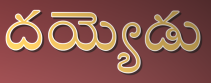
దయ్యెడు